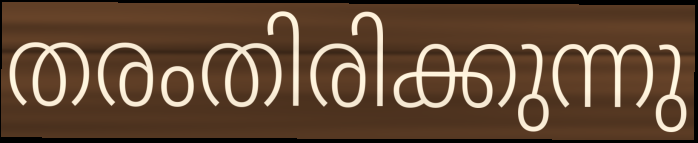
തരംതിരിക്കുന്നു